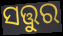
ସତ୍ତୁର